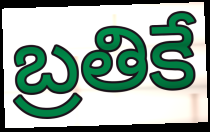
బ్రతికే